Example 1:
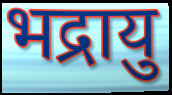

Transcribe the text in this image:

भद्रायु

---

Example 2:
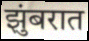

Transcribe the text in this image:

झुंबरात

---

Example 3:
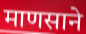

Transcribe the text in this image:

माणसाने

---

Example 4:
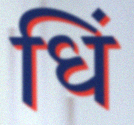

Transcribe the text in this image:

धिं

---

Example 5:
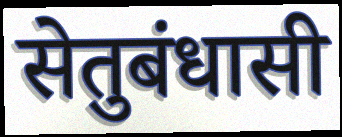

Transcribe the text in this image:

सेतुबंधासी